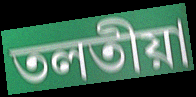
তলতীয়া